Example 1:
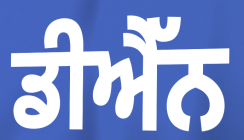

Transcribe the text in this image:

ਡੀਐੱਨ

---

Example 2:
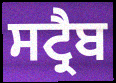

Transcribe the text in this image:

ਸਟ੍ਰੈਬ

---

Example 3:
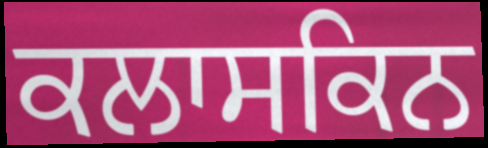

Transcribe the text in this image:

ਕਲਾਸਕਿਨ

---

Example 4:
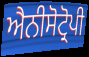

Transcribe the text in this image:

ਐਨੀਸੋਟ੍ਰੋਪੀ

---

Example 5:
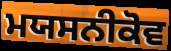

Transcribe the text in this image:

ਮਯਸਨੀਕੋਵ